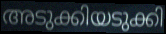
അടുക്കിയടുക്കി